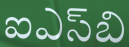
ఐఎస్‌బి